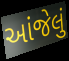
આંજેલું